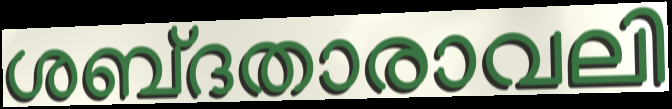
ശബ്‌ദതാരാവലി